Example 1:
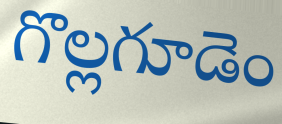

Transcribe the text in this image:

గొల్లగూడెం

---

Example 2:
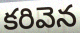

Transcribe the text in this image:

కరివెన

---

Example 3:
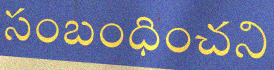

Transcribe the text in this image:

సంబంధించని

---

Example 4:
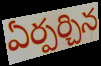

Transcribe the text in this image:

ఏర్పర్చిన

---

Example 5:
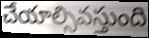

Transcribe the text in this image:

చేయాల్సివస్తుంది